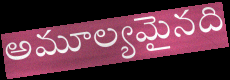
అమూల్యమైనది